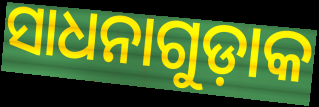
ସାଧନାଗୁଡ଼ାକ